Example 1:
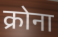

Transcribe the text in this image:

क्रोना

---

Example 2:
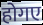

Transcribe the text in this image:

होगए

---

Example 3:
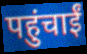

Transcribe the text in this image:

पहुंचाईं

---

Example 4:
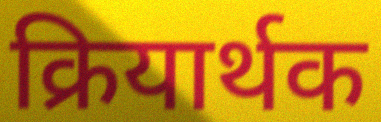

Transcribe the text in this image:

क्रियार्थक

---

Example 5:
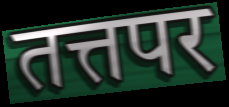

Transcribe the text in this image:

तत्तपर